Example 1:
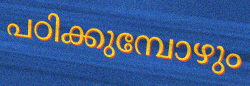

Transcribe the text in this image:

പഠിക്കുമ്പോഴും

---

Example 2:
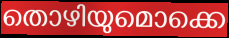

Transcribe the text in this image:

തൊഴിയുമൊക്കെ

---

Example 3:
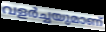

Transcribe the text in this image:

വളർച്ചയുമാണ്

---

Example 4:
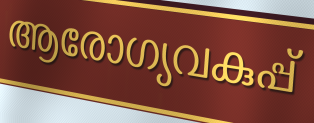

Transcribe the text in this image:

ആരോഗ്യവകുപ്പ്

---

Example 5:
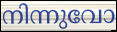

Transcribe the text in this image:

നിന്നുവോ